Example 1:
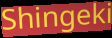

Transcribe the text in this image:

Shingeki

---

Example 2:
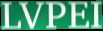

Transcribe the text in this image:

LVPEI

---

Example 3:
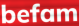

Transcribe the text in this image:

befam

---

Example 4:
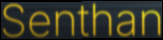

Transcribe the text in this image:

Senthan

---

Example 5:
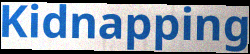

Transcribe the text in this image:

Kidnapping